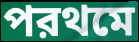
পরথমে